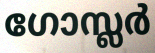
ഗോസ്ലർ